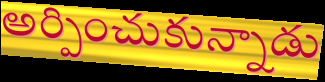
అర్పించుకున్నాడు